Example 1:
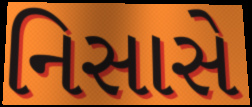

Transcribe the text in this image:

નિસાસે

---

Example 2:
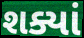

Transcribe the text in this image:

શક્યાં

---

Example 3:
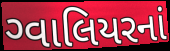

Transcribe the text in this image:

ગ્વાલિયરનાં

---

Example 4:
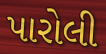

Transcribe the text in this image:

પારોલી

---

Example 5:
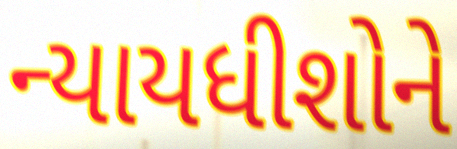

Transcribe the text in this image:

ન્યાયધીશોને